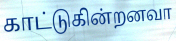
காட்டுகின்றனவா